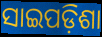
ସାଇପଡ଼ିଶା